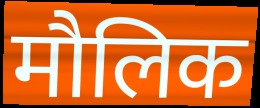
मौलिक